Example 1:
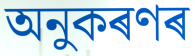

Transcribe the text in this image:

অনুকৰণৰ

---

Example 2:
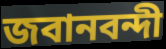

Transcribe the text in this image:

জবানবন্দী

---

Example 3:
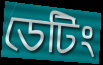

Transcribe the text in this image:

ডেটিং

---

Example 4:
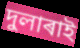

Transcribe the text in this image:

দুলাৰাই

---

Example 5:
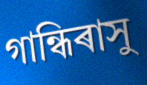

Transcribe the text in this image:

গান্ধিৰাসু